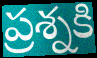
ప్రశ్నకి